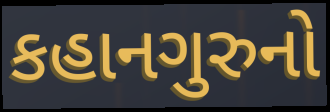
કહાનગુરુનો